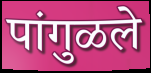
पांगुळले